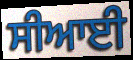
ਸੀਆਈ